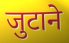
जुटाने